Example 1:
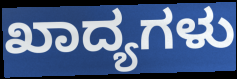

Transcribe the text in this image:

ಖಾದ್ಯಗಳು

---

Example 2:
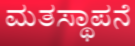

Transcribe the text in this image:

ಮತಸ್ಥಾಪನೆ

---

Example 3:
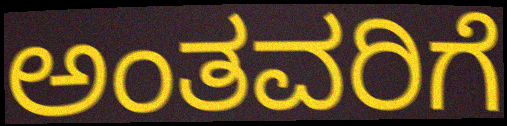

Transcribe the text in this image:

ಅಂತವರಿಗೆ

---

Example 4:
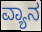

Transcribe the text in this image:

ವ್ಯಾನ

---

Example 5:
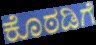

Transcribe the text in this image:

ಕೊಠಡಿಗೆ